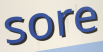
sore